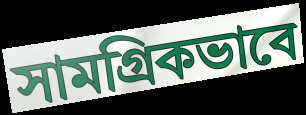
সামগ্ৰিকভাবে